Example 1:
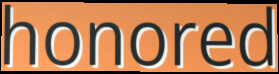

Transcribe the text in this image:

honored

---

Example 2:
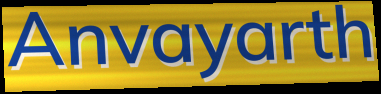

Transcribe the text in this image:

Anvayarth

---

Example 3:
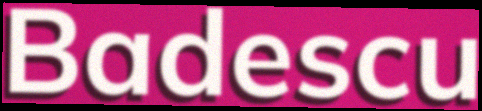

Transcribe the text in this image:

Badescu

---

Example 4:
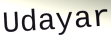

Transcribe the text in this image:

Udayar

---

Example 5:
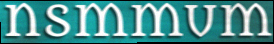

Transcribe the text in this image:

nsmmum